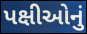
પક્ષીઓનું